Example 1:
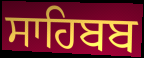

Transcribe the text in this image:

ਸਾਹਿਬਬ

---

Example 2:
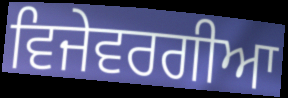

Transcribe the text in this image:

ਵਿਜੇਵਰਗੀਆ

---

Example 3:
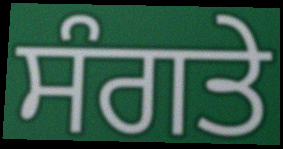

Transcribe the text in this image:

ਸੰਗਤੇ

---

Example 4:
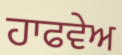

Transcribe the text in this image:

ਹਾਫਵੇਅ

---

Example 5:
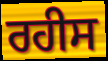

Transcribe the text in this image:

ਰਹੀਸ